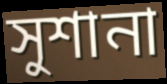
সুশানা